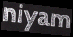
niyam